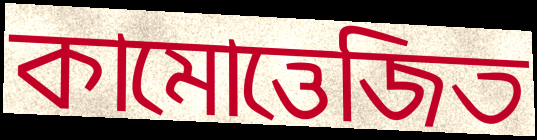
কামোত্তেজিত